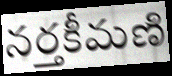
నర్తకీమణి